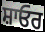
ਸ਼ਾਓਰ